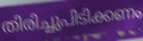
തിരിച്ചുപിടിക്കണം